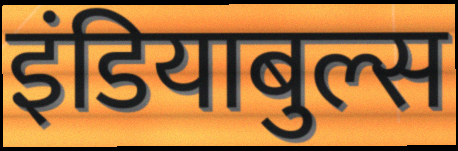
इंडियाबुल्‍स